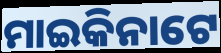
ମାଇକିନାଟେ